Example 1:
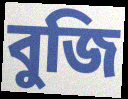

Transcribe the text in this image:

বুজি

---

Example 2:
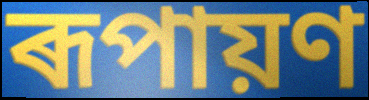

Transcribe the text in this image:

ৰূপায়ণ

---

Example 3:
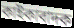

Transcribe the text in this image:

কাইকাবাদক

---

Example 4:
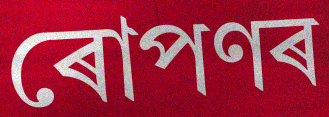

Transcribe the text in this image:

ৰোপণৰ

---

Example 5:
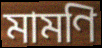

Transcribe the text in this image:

মামণি